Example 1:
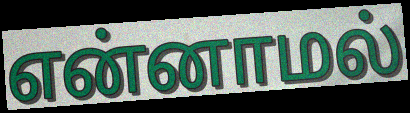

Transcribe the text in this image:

என்னாமல்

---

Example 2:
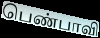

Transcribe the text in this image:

பெண்பாவி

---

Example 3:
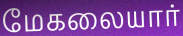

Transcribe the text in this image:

மேகலையார்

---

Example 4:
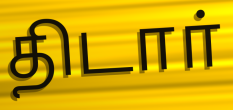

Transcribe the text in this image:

திடார்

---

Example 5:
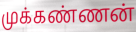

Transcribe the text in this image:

முக்கண்ணன்